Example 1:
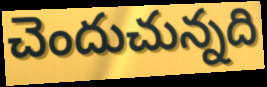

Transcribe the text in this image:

చెందుచున్నది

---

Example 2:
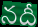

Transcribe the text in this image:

నదీ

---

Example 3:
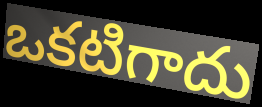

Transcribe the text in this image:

ఒకటిగాదు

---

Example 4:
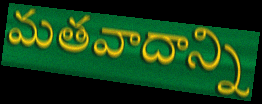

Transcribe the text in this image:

మతవాదాన్ని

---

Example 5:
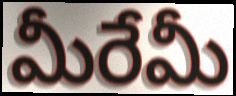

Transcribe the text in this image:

మీరేమీ